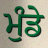
ਮੁੰਡੇ